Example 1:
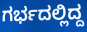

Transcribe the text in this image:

ಗರ್ಭದಲ್ಲಿದ್ದ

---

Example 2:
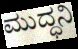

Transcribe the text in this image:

ಮುದ್ಧನಿ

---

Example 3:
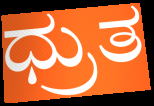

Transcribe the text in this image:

ಧ್ರುತ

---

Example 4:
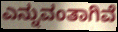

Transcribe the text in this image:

ಎನ್ನುವಂತಾಗಿವೆ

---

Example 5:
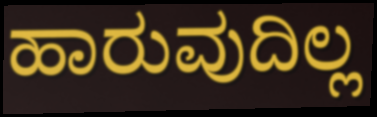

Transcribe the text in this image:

ಹಾರುವುದಿಲ್ಲ